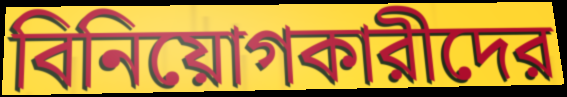
বিনিয়োগকারীদের